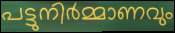
പട്ടുനിർമ്മാണവും